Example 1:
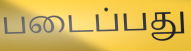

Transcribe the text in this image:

படைப்பது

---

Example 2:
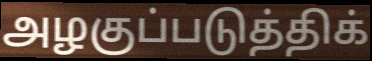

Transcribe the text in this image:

அழகுப்படுத்திக்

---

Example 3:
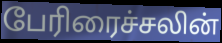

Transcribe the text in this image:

பேரிரைச்சலின்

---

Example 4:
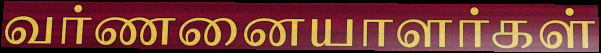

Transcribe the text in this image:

வர்ணனையாளர்கள்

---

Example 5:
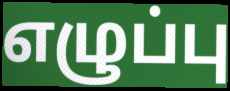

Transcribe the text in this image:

எழுப்பு